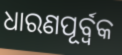
ଧାରଣପୂର୍ବ୍ବକ